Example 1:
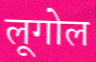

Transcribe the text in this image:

लूगोल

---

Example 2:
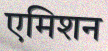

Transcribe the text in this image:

एमिशन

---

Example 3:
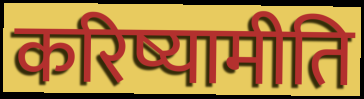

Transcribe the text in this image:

करिष्यामीति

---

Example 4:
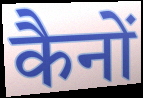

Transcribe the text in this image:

कैनों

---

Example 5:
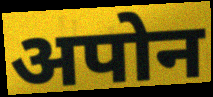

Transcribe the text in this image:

अपोन